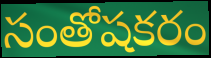
సంతోషకరం